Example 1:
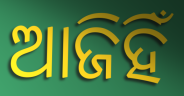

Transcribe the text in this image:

ଆଜିହିଁ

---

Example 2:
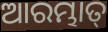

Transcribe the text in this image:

ଆରମ୍ଭାତ୍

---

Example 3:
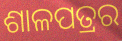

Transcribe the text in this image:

ଶାଳପତ୍ରର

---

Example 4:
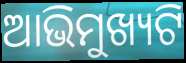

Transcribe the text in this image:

ଆଭିମୁଖ୍ୟଟି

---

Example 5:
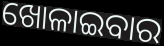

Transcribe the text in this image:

ଖୋଳାଇବାର